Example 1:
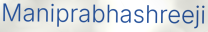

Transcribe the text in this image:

Maniprabhashreeji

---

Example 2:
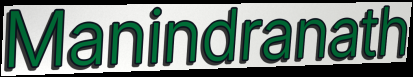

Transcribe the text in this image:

Manindranath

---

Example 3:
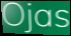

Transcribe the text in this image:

Ojas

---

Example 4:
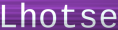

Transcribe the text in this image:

Lhotse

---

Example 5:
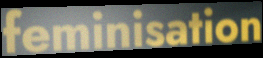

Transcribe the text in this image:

feminisation